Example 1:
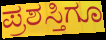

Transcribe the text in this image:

ಪ್ರಶಸ್ತಿಗೂ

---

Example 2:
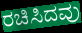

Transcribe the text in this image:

ರಚಿಸಿದವು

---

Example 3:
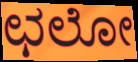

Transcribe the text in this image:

ಛಲೋ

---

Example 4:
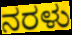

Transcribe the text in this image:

ನರಳು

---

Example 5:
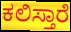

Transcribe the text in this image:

ಕಲಿಸ್ತಾರೆ